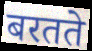
बरतते